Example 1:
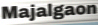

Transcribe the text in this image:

Majalgaon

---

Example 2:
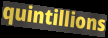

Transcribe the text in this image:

quintillions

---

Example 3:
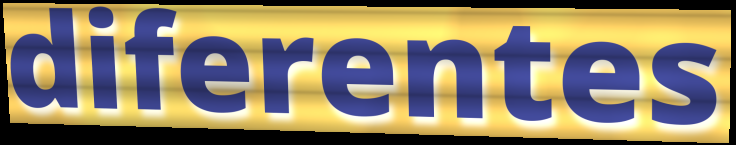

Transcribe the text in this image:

diferentes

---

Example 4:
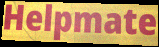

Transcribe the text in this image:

Helpmate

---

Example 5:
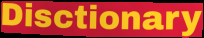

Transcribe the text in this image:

Disctionary